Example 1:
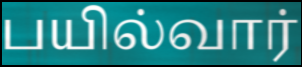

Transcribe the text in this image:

பயில்வார்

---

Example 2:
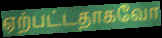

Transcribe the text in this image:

ஏற்பட்டதாகவோ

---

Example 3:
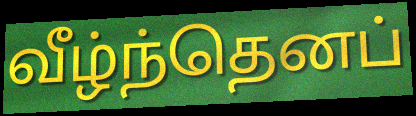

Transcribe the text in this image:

வீழ்ந்தெனப்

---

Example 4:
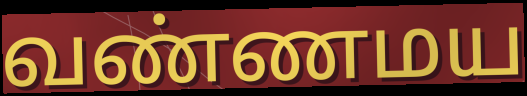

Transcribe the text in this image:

வண்ணமய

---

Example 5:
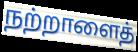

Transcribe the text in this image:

நற்றாளைத்